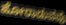
ಹೋರಾಡುವವು